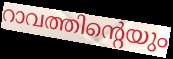
റാവത്തിന്റെയും